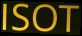
ISOT